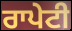
ਰਾਪੇਟੀ